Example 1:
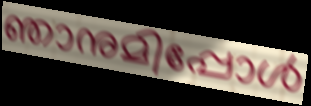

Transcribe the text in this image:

ഞാനുമിപ്പോൾ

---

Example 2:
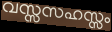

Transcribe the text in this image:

വസ്സസഹസ്സം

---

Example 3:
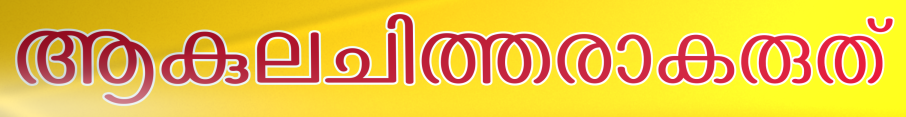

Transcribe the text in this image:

ആകുലചിത്തരാകരുത്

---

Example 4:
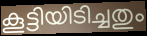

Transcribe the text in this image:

കൂട്ടിയിടിച്ചതും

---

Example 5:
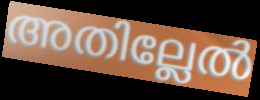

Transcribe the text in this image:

അതില്ലേൽ